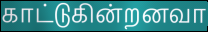
காட்டுகின்றனவா